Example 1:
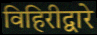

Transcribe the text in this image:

विहिरीद्वारे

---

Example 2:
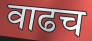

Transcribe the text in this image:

वाढच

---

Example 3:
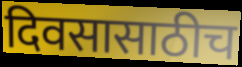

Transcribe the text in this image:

दिवसासाठीच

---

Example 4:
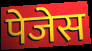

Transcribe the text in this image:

पेजेस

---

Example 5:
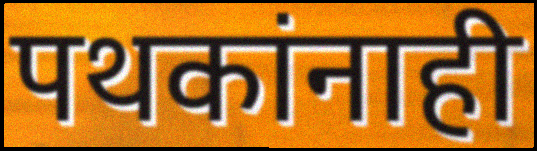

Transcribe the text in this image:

पथकांनाही